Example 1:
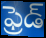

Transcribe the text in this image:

ఫ్రెడ్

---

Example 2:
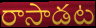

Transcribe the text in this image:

రాసాడట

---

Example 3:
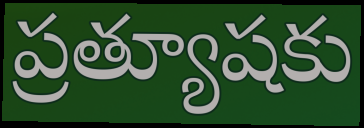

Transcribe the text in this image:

ప్రత్యూషకు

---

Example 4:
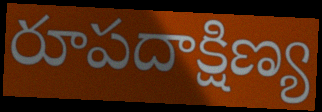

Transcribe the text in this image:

రూపదాక్షిణ్య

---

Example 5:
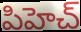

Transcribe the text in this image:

పిహెచ్